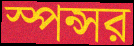
স্পন্সর